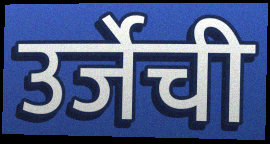
उर्जेची